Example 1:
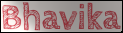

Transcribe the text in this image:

Bhavika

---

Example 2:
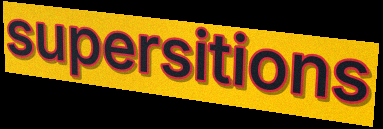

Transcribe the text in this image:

supersitions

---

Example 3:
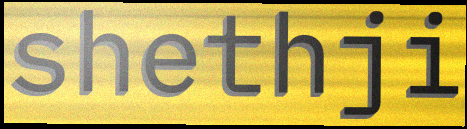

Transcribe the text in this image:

shethji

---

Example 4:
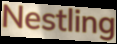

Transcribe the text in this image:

Nestling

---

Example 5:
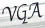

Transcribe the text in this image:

VGA